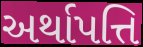
અર્થાપત્તિ